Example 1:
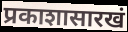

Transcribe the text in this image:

प्रकाशासारखं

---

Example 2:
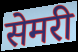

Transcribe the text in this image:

सेमरी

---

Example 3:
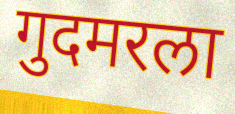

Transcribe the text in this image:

गुदमरला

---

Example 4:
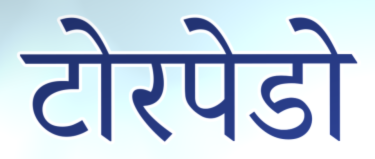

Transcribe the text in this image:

टोरपेडो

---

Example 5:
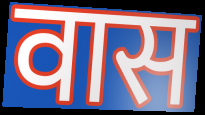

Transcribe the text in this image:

वास